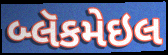
બ્લૅકમેઇલ